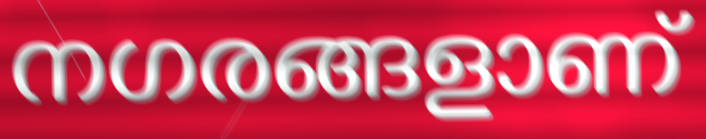
നഗരങ്ങളാണ്